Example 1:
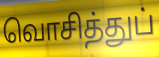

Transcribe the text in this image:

வொசித்துப்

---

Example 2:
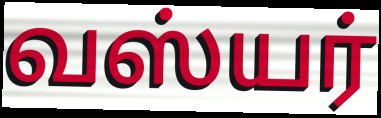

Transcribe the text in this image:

வஸ்யர்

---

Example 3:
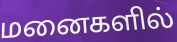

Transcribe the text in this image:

மனைகளில்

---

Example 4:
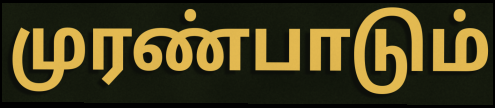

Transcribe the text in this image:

முரண்பாடும்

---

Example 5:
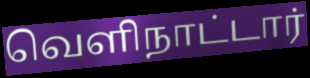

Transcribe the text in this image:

வெளிநாட்டார்